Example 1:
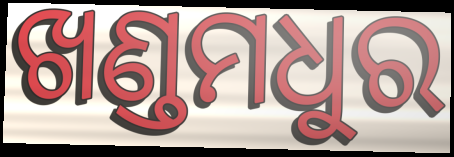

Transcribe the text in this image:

ଖଣ୍ଡମଧୁର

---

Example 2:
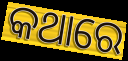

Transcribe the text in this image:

କଥାରେ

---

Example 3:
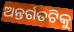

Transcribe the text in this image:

ଅନ୍ତର୍ଗତଟିକୁ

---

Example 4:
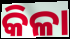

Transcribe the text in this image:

କିଳା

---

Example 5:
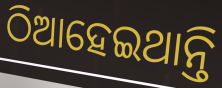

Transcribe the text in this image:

ଠିଆହେଇଥାନ୍ତି